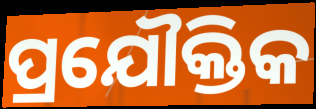
ପ୍ରଯୌକ୍ତିକ